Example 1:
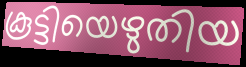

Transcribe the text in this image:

കൂട്ടിയെഴുതിയ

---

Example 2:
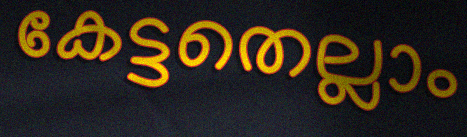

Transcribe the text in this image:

കേട്ടതെല്ലാം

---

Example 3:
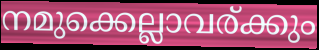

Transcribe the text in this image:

നമുക്കെല്ലാവര്ക്കും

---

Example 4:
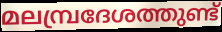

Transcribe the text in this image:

മലമ്പ്രദേശത്തുണ്ട്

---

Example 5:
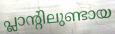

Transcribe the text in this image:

പ്ലാന്റിലുണ്ടായ